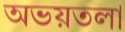
অভয়তলা